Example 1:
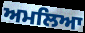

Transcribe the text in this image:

ਅਮਲਿਆ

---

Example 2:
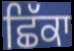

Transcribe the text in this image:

ਛਿੱਕਾ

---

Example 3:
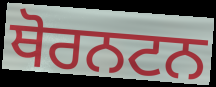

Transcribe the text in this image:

ਥੋਰਨਟਨ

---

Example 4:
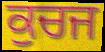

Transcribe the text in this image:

ਕੁਚਜ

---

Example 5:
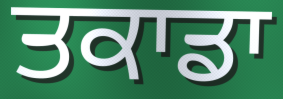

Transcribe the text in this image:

ਤਕਾਡਾ